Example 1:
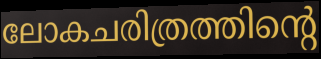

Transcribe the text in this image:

ലോകചരിത്രത്തിന്റെ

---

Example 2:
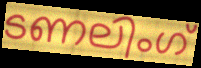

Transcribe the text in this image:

ടണലിംഗ്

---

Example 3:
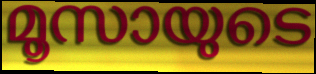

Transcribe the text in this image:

മൂസായുടെ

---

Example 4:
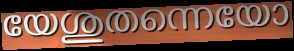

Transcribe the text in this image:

യേശുതന്നെയോ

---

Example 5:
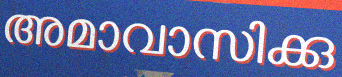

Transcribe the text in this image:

അമാവാസിക്കു